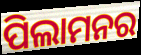
ପିଲାମନର